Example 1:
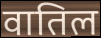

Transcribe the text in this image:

वातिल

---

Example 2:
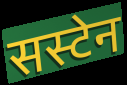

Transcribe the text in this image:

सस्टेन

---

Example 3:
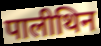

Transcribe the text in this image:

पालीथिन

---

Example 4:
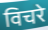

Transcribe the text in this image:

विचरे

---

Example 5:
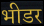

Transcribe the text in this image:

भीडर